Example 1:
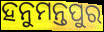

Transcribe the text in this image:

ହନୁମନ୍ତପୁର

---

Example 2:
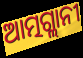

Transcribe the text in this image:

ଆତ୍ମଗ୍ଲାନୀ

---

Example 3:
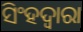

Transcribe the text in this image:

ସିଂହଦ୍ୱାରା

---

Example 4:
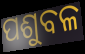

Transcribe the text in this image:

ପଶୁବଳ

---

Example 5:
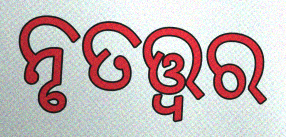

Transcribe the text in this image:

ନୃତତ୍ତ୍ୱର